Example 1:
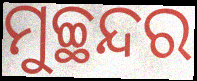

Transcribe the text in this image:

ମୁଚ୍ଛନ୍ଦର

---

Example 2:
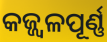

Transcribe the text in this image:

କଜ୍ଜ୍ୱଳପୂର୍ଣ୍ଣ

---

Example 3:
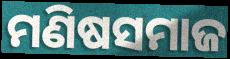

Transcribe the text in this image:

ମଣିଷସମାଜ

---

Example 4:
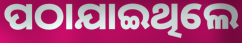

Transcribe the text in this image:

ପଠାଯାଇଥିଲେ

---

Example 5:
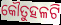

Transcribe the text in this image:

କୌତୁହଳଟି